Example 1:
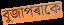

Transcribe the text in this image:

বুজাপৰাকে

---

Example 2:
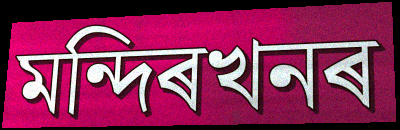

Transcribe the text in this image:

মন্দিৰখনৰ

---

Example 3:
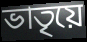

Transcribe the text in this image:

ভাতৃয়ে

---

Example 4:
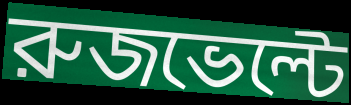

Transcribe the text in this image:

ৰুজভেল্টে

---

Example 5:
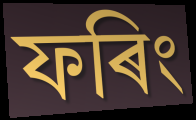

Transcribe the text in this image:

ফৰিং